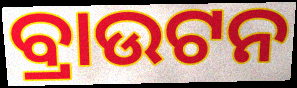
ବ୍ରାଉଟନ